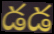
డడ